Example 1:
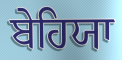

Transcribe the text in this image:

ਬੇਹਿਯਾ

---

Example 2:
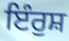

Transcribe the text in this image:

ਇੰਰੁਸ਼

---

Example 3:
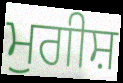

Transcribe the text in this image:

ਮੁਗੀਸ਼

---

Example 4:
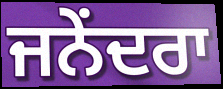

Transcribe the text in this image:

ਜਨੇਂਦਰਾ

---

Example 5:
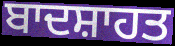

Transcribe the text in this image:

ਬਾਦਸ਼ਾਹਤ